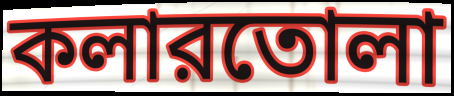
কলারতোলা